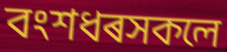
বংশধৰসকলে